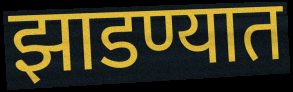
झाडण्यात